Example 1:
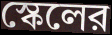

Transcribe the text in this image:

স্কেলের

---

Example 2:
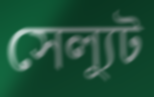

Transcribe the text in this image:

সেল্যুট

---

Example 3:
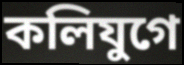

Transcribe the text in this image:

কলিযুগে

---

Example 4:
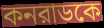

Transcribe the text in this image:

কনরাডকে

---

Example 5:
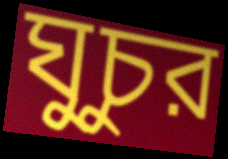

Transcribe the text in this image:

ঘুচুর